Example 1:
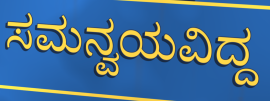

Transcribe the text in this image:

ಸಮನ್ವಯವಿದ್ದ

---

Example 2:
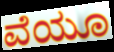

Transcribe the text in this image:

ವೆಯೂ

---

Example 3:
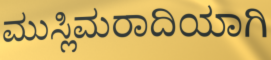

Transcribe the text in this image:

ಮುಸ್ಲಿಮರಾದಿಯಾಗಿ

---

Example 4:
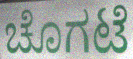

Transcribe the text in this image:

ಚೊಗಟೆ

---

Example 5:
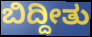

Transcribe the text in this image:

ಬಿದ್ದೀತು